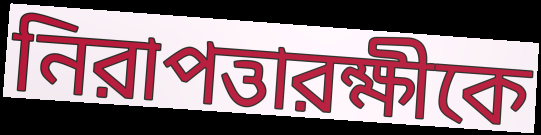
নিরাপত্তারক্ষীকে